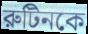
রুটিনকে